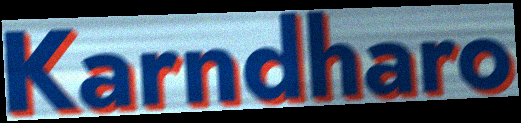
Karndharo